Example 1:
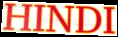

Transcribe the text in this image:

HINDI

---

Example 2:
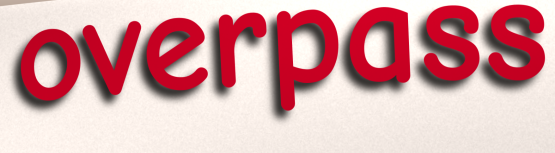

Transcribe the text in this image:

overpass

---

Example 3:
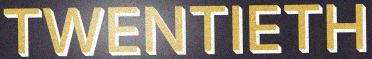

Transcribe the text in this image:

TWENTIETH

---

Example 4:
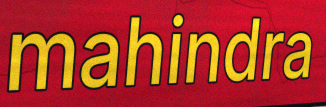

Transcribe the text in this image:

mahindra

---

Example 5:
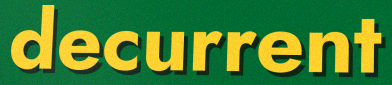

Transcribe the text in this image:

decurrent